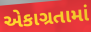
એકાગ્રતામાં